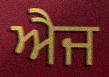
ਐਜ